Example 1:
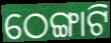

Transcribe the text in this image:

ଠେଙ୍ଗାଟି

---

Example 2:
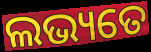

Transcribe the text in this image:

ଲଭ୍ୟତେ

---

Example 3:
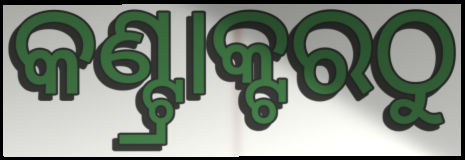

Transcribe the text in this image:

କଣ୍ଟ୍ରାକ୍ଟରଠୁ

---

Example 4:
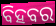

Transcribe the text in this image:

ବିହବର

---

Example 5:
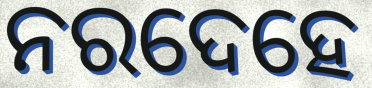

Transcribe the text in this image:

ନରଦେହେ